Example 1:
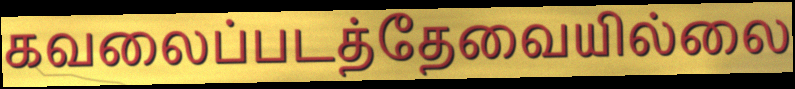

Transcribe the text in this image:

கவலைப்படத்தேவையில்லை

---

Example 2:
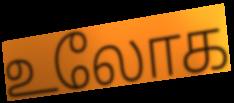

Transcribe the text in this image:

உலோக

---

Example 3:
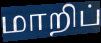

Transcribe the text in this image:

மாறிப்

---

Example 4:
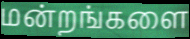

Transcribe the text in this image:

மன்றங்களை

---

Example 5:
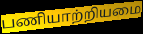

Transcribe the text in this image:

பணியாற்றியமை